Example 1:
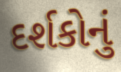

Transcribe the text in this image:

દર્શકોનું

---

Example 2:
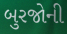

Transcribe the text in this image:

બુરજોની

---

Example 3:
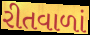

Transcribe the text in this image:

રીતવાળાં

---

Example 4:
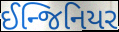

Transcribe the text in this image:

ઈન્જિનિયર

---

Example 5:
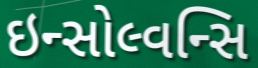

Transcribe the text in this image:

ઇન્સોલ્વન્સિ